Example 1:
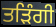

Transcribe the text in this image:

ਤੜਿੰਗੀ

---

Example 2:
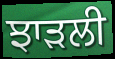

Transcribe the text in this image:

ਝਾੜਲੀ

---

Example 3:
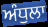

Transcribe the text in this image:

ਅੰਧੁਲਾ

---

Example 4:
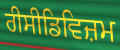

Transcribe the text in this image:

ਰੀਸੀਡਿਵਿਜ਼ਮ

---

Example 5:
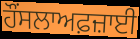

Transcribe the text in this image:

ਹੌਂਸਲਾਅਫ਼ਜ਼ਾਈ